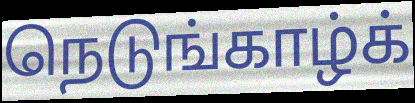
நெடுங்காழ்க்